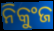
ନିକୁଂଜ